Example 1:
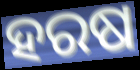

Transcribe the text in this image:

ହରଷ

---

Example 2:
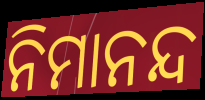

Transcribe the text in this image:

ନିମାନନ୍ଦ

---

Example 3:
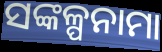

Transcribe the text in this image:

ସଙ୍କଳ୍ପନାମା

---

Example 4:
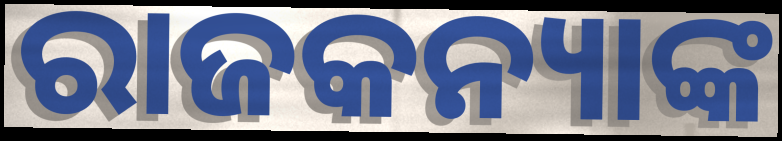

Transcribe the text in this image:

ରାଜକନ୍ୟାଙ୍କ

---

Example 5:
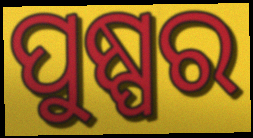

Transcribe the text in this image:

ପୁଷ୍ପର